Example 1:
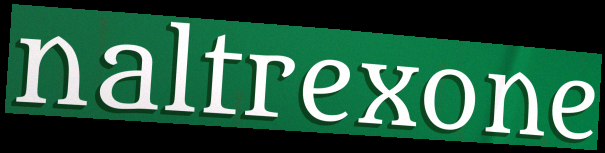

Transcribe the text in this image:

naltrexone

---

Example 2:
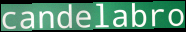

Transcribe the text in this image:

candelabro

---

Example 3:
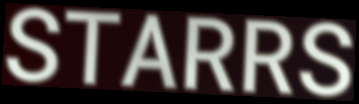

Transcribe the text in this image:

STARRS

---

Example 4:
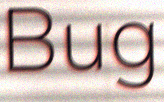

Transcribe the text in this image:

Bug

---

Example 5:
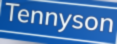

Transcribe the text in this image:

Tennyson